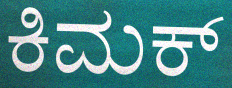
ಕಿಮಕ್